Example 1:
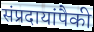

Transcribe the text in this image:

संप्रदायांपैकी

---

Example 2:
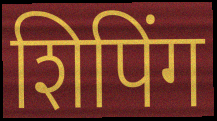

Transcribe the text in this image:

शिपिंग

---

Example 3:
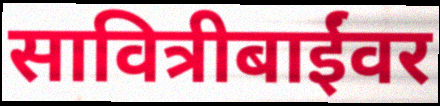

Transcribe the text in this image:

सावित्रीबाईंवर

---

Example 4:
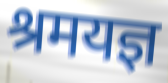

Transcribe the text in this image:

श्रमयज्ञ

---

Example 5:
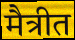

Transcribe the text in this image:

मैत्रीत